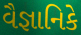
વૈજ્ઞાનિકે